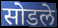
सोडले